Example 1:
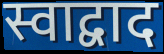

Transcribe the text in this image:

स्वाद्वाद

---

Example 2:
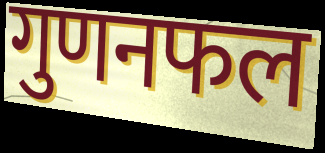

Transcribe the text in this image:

गुणनफल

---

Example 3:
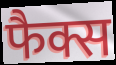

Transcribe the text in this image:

फैक्स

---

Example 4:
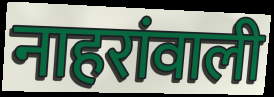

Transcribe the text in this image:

नाहरांवाली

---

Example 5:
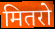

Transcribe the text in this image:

मितरो